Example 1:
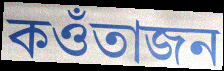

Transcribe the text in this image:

কওঁতাজন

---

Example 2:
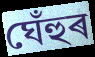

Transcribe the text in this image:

ঘেঁহুৰ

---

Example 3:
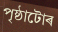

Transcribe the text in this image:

পৃষ্ঠাটোৰ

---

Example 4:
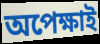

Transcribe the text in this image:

অপেক্ষাই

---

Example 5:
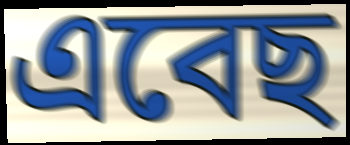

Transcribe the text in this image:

এবেছ